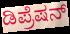
ಡಿಪ್ರೆಷನ್